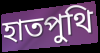
হাতপুথি